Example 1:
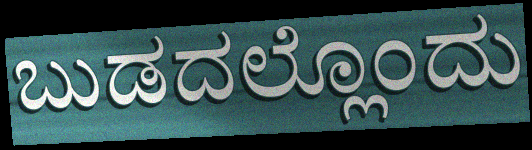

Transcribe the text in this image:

ಬುಡದಲ್ಲೊಂದು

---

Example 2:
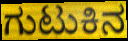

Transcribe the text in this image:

ಗುಟುಕಿನ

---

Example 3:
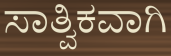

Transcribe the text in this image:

ಸಾತ್ವಿಕವಾಗಿ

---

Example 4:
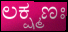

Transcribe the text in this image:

ಲಕ್ಷ್ಮಣಃ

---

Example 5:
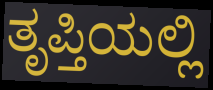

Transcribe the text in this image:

ತೃಪ್ತಿಯಲ್ಲಿ